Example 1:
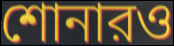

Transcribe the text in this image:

শোনারও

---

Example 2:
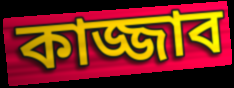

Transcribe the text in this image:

কাজ্জাব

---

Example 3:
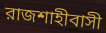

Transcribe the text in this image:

রাজশাহীবাসী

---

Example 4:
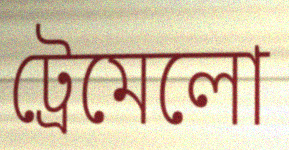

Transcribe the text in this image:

ট্রেমেলো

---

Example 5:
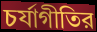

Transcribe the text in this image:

চর্যাগীতির